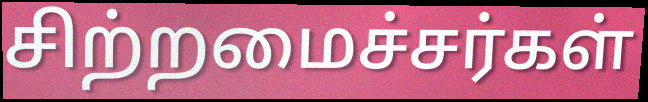
சிற்றமைச்சர்கள்